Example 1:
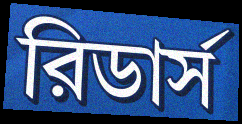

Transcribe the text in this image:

রিডার্স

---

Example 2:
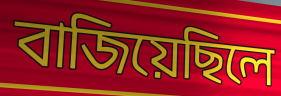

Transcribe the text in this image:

বাজিয়েছিলে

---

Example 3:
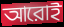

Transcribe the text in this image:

আরোই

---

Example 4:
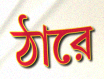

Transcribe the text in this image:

ঠারে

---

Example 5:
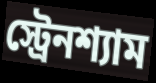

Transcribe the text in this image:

স্ট্রেনশ্যাম